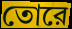
তোরে